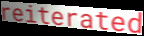
reiterated